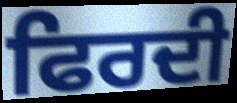
ਫਿਰਦੀ